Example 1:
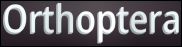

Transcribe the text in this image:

Orthoptera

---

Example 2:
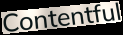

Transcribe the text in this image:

Contentful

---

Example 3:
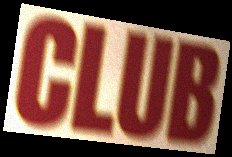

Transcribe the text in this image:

CLUB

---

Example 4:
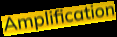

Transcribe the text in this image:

Amplification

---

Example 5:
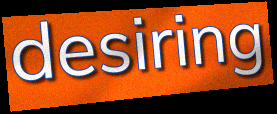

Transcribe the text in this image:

desiring